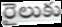
రైలుకు